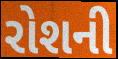
રોશની